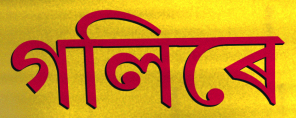
গলিৰে